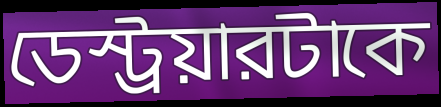
ডেস্ট্রয়ারটাকে